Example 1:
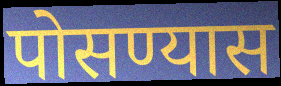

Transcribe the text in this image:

पोसण्यास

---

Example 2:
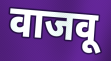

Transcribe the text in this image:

वाजवू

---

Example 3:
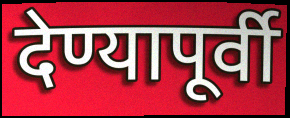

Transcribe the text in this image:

देण्यापूर्वी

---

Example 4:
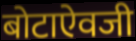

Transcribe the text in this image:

बोटाऐवजी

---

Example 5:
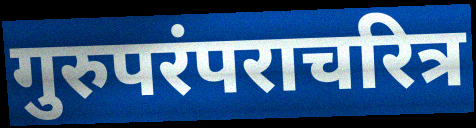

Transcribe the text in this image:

गुरुपरंपराचरित्र